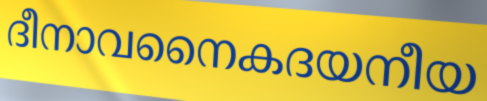
ദീനാവനൈകദയനീയ